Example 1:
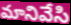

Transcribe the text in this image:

మానివేసి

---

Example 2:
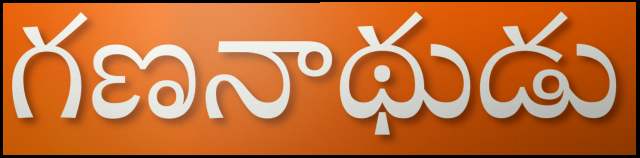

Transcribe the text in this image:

గణనాథుడు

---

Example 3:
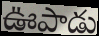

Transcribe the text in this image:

ఊపాడు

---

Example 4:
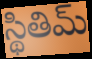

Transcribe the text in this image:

స్థితిమ్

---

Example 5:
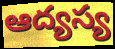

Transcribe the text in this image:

ఆద్యస్య